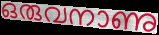
ഒരുവനാണു